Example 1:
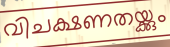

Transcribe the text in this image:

വിചക്ഷണതയ്ക്കും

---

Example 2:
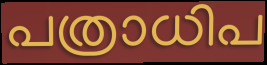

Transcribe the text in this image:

പത്രാധിപ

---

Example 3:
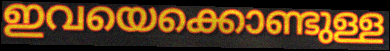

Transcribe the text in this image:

ഇവയെക്കൊണ്ടുള്ള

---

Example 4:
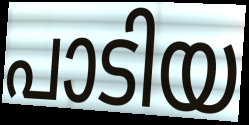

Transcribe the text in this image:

പാടിയ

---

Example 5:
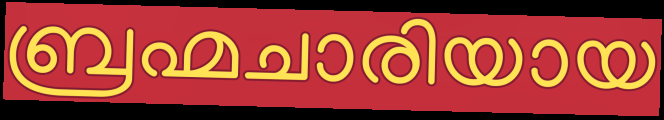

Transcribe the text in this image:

ബ്രഹ്മചാരിയായ